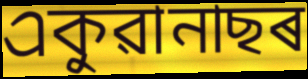
একুৱানাছৰ